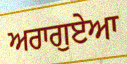
ਅਰਾਗੁਏਆ